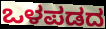
ಒಳಪಡದ